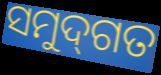
ସମୁଦ୍‌ଗତ